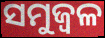
ସମୁଜ୍ୱଳ